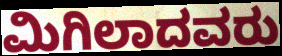
ಮಿಗಿಲಾದವರು